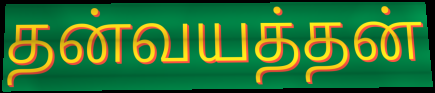
தன்வயத்தன்